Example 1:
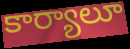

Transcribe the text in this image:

కార్యాలూ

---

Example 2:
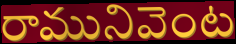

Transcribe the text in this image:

రామునివెంట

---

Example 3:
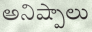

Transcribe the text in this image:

అనిష్పాలు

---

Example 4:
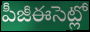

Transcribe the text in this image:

పీజీఈసెట్లో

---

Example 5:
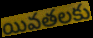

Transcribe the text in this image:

యివతలకు